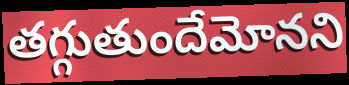
తగ్గుతుందేమోనని